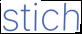
stich